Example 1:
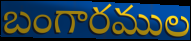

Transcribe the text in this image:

బంగారముల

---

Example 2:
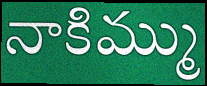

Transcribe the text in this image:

నాకిమ్ము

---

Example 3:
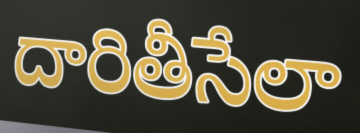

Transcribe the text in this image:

దారితీసేలా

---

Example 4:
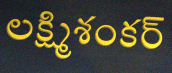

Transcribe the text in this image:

లక్ష్మిశంకర్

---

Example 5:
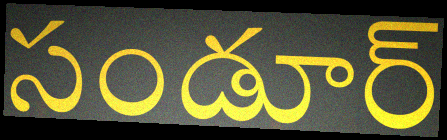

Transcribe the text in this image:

సండూర్